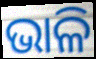
ଭାଳି